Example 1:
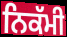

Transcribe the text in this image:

ਨਿਕੱਮੀ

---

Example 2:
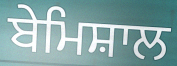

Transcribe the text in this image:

ਬੇਮਿਸ਼ਾਲ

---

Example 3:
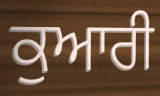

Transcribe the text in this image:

ਕੁਆਰੀ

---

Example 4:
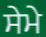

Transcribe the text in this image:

ਸੇਮੇ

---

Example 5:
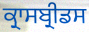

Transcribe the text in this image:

ਕ੍ਰਾਸਬ੍ਰੀਡਸ